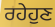
ਰਹੇਹੁਣ